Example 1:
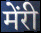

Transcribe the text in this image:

मेंरी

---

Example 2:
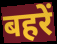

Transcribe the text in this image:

बहरें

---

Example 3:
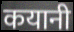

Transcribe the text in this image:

कयानी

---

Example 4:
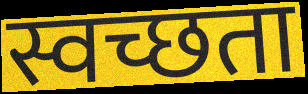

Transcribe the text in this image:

स्वच्छता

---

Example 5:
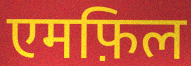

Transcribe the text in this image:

एमफ़िल